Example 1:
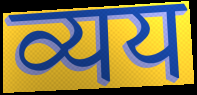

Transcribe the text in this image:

व्यय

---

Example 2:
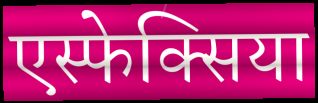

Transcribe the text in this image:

एस्फेक्सिया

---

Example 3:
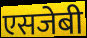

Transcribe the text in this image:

एसजेबी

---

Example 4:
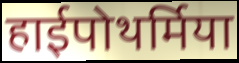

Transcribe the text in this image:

हाईपोथर्मिया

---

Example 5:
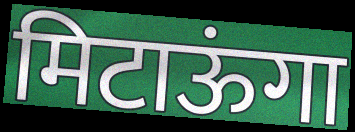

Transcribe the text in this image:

मिटाऊंगा